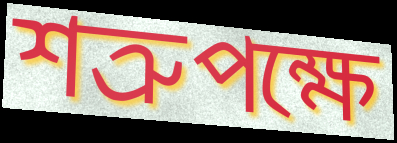
শত্রুপক্ষে